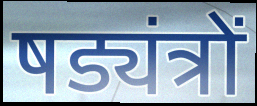
षड्यंत्रों